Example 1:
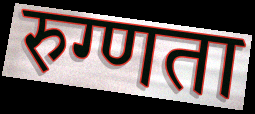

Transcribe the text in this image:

रुग्णता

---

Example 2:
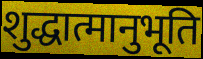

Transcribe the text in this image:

शुद्धात्मानुभूति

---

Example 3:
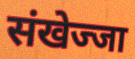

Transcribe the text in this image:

संखेज्जा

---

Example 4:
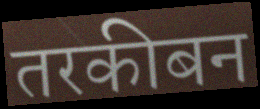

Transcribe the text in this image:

तरकीबन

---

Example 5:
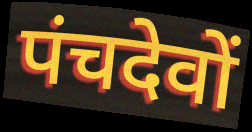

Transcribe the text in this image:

पंचदेवों